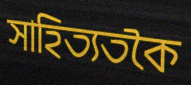
সাহিত্যতকৈ